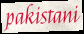
pakistani